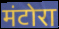
मंटोरा